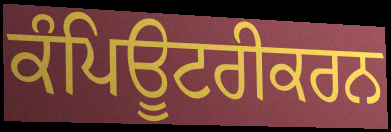
ਕੰਪਿਊਟਰੀਕਰਨ